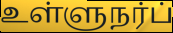
உள்ளுநர்ப்